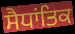
ਸੈਧਾਂਤਿਕ